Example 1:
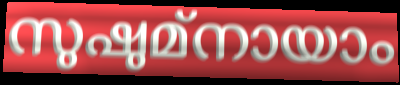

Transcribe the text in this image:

സുഷുമ്നായാം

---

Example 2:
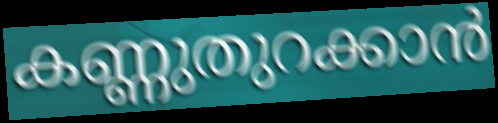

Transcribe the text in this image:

കണ്ണുതുറക്കാൻ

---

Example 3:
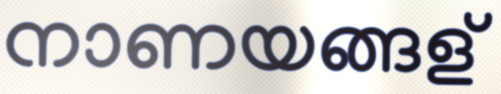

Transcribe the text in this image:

നാണയങ്ങള്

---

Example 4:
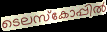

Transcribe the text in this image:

ടെലസ്കോപ്പിൽ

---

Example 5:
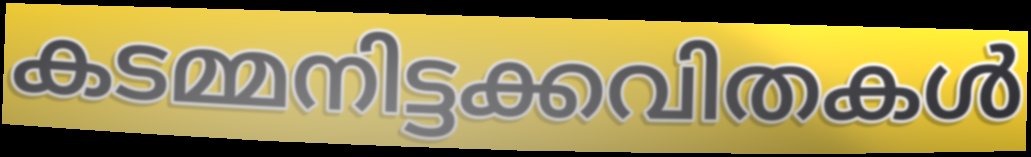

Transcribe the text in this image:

കടമ്മനിട്ടക്കവിതകൾ